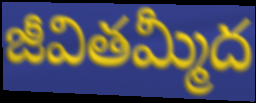
జీవితమ్మీద